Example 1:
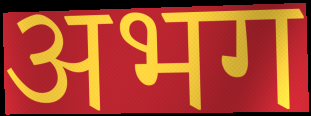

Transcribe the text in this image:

अभग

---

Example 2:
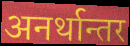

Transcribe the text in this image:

अनर्थान्तर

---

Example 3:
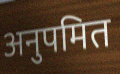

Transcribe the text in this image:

अनुपमित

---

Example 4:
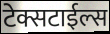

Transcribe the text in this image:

टेक्सटाईल्स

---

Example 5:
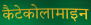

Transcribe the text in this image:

कैटेकोलामाइन